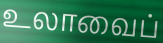
உலாவைப்